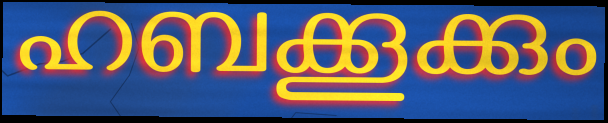
ഹബക്കൂക്കും